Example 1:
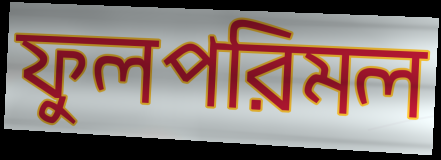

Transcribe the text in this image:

ফুলপরিমল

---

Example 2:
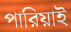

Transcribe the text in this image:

পারিয়াই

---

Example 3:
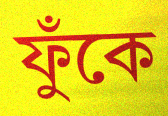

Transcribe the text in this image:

ফুঁকে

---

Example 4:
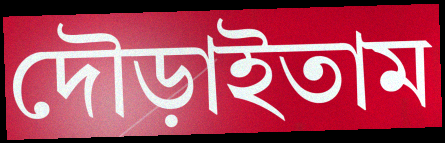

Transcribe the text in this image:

দৌড়াইতাম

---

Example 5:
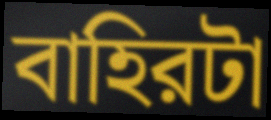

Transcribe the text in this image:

বাহিরটা